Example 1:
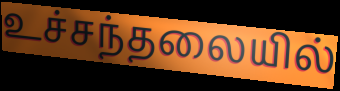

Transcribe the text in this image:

உச்சந்தலையில்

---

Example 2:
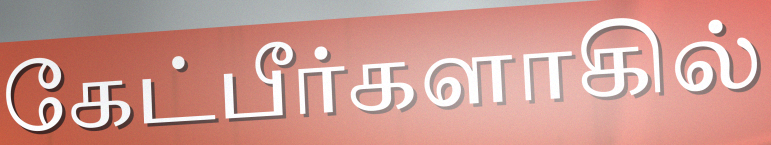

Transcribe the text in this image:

கேட்பீர்களாகில்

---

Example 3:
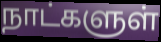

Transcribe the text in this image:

நாட்களுள்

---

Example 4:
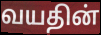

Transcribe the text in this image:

வயதின்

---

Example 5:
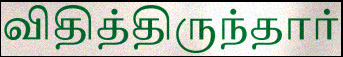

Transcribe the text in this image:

விதித்திருந்தார்